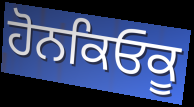
ਹੋਨਕਿਓਕੂ